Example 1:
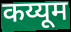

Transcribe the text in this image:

कय्यूम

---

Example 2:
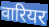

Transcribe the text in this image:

वारियर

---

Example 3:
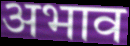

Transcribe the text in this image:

अभाव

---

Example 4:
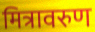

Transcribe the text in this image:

मित्रावरुण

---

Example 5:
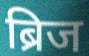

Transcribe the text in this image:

ब्रिज